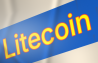
Litecoin